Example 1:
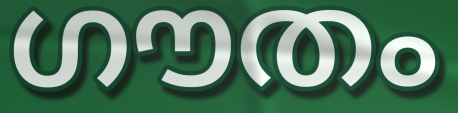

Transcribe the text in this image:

ഗൗതം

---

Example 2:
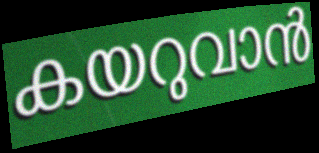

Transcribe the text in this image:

കയറുവാൻ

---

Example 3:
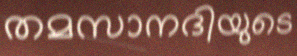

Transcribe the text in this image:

തമസാനദിയുടെ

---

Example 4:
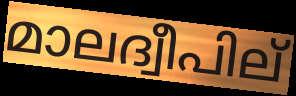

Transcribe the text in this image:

മാലദ്വീപില്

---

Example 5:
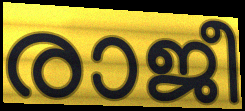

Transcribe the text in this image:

രാജീ